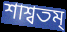
শাশ্বতম্